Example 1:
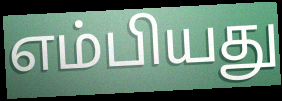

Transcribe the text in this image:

எம்பியது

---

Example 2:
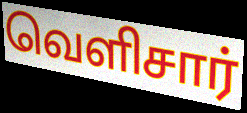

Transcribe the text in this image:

வெளிசார்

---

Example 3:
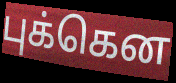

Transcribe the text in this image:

புக்கென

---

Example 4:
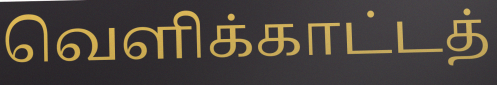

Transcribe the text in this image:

வெளிக்காட்டத்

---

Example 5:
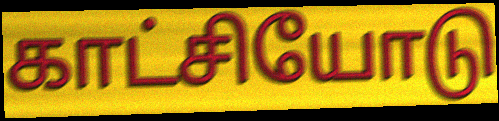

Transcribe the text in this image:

காட்சியோடு